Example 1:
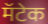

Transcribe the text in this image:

मॅटेक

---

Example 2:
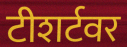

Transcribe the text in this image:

टीशर्टवर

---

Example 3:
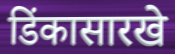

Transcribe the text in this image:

डिंकासारखे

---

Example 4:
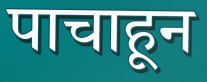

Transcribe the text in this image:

पाचाहून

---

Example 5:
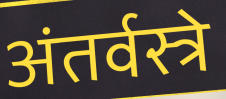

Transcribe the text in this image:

अंतर्वस्त्रे